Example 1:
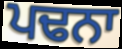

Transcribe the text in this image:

ਪਢਨਾ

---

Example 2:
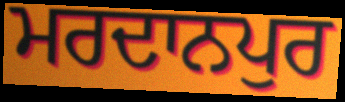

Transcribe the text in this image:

ਮਰਦਾਨਪੁਰ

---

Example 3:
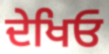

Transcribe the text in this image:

ਦੇਖਿਓ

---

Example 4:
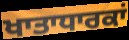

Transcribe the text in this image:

ਖਾਤਾਧਾਰਕਾਂ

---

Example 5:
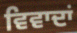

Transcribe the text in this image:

ਵਿਵਾਦਾਂ